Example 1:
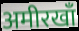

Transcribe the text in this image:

अमीरखाँ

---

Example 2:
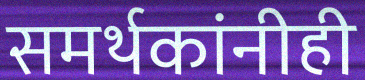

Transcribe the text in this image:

समर्थकांनीही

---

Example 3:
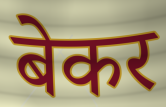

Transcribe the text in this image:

बेकर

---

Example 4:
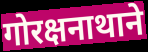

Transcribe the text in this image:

गोरक्षनाथाने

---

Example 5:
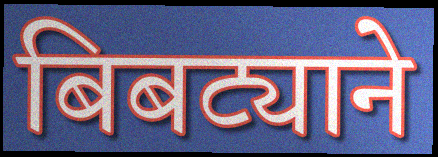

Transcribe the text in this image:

बिबट्याने